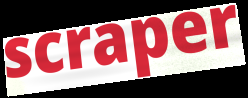
scraper